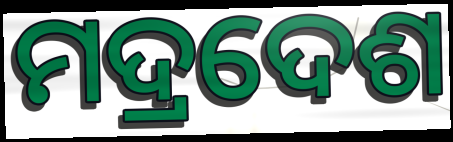
ମଦ୍ରଦେଶ